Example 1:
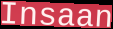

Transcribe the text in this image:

Insaan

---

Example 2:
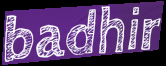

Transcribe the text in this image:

badhir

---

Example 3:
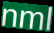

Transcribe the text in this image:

nml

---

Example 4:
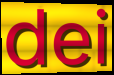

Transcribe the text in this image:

dei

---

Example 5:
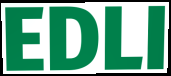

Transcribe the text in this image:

EDLI